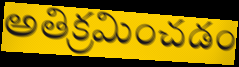
అతిక్రమించడం